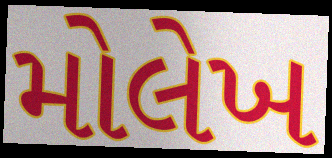
મોલેખ